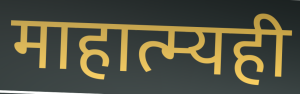
माहात्म्यही